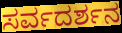
ಸರ್ವದರ್ಶನ